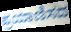
ಪ್ರಯಾಣಿಸದ